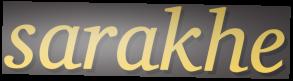
sarakhe